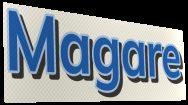
Magare